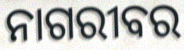
ନାଗରୀବର